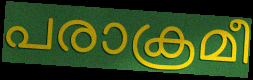
പരാക്രമീ